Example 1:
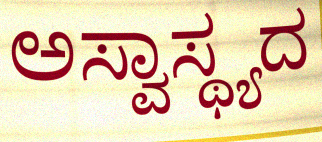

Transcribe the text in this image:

ಅಸ್ವಾಸ್ಥ್ಯದ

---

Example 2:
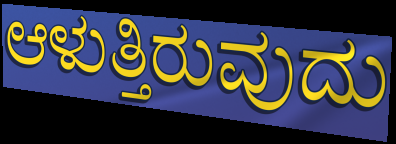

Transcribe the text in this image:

ಆಳುತ್ತಿರುವುದು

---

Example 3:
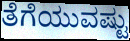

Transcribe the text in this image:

ತೆಗೆಯುವಷ್ಟು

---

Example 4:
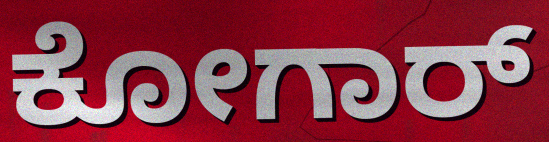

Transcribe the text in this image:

ಕೋಗಾರ್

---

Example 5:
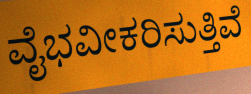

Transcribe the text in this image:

ವೈಭವೀಕರಿಸುತ್ತಿವೆ